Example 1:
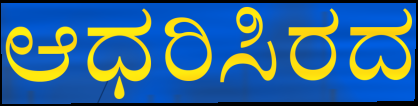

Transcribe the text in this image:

ಆಧರಿಸಿರದ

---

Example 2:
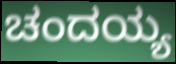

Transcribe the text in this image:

ಚಂದಯ್ಯ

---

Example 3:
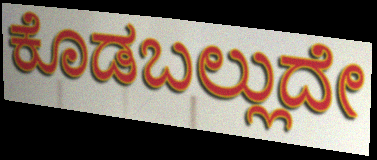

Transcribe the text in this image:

ಕೊಡಬಲ್ಲುದೇ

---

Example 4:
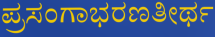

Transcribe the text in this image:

ಪ್ರಸಂಗಾಭರಣತೀರ್ಥ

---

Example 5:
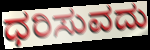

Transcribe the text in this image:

ಧರಿಸುವದು